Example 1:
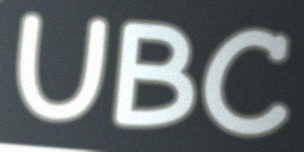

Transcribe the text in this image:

UBC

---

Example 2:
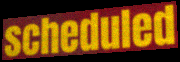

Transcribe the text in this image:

scheduled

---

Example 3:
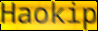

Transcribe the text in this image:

Haokip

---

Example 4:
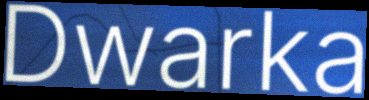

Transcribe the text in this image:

Dwarka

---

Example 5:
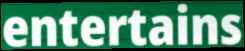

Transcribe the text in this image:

entertains